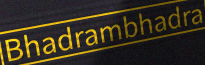
Bhadrambhadra